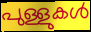
പുള്ളുകൾ